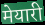
मेयारी